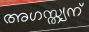
അഗസ്ത്യന്